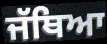
ਜੱਥਿਆ